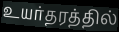
உயர்தரத்தில்